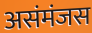
असंमंजस